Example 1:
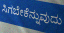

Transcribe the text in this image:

ಸಿಗಬೇಕೆನ್ನುವುದು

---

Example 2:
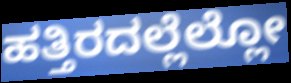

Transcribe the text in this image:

ಹತ್ತಿರದಲ್ಲೆಲ್ಲೋ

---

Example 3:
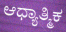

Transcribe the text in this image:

ಆಧ್ಯಾತ್ಮಿಕ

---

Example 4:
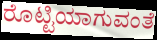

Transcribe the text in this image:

ರೊಟ್ಟಿಯಾಗುವಂತೆ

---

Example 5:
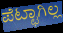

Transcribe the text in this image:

ಪೆಟ್ಟಾಗಿಲ್ಲ